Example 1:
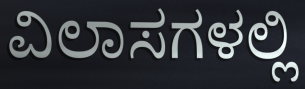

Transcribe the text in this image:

ವಿಲಾಸಗಳಲ್ಲಿ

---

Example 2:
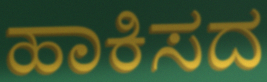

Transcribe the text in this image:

ಹಾಕಿಸದ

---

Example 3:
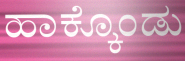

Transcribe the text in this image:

ಹಾಕ್ಕೊಂಡು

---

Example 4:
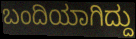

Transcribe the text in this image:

ಬಂದಿಯಾಗಿದ್ದು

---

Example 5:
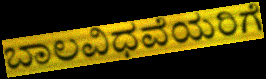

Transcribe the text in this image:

ಬಾಲವಿಧವೆಯರಿಗೆ